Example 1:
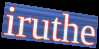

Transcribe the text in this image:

iruthe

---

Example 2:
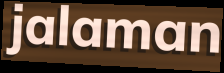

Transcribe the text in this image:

jalaman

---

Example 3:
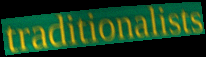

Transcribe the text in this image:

traditionalists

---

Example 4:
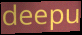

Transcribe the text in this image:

deepu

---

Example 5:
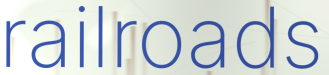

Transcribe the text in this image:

railroads